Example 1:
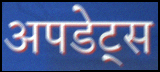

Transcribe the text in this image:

अपडेट्स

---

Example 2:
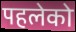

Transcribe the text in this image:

पहलेको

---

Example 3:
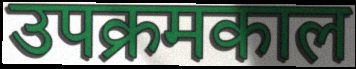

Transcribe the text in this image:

उपक्रमकाल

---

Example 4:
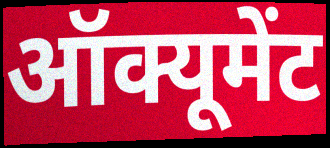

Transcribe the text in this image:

ऑक्यूमेंट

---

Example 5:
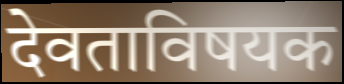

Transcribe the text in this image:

देवताविषयक